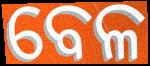
ବେଳ